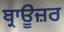
ਬ੍ਰਾਊਜ਼ਰ